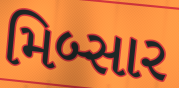
મિબ્સાર